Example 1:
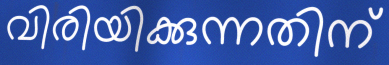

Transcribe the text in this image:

വിരിയിക്കുന്നതിന്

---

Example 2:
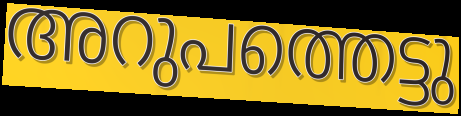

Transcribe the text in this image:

അറുപത്തെട്ടു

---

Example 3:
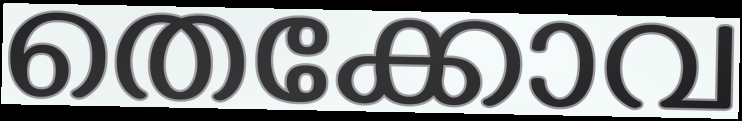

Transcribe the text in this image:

തെക്കോവ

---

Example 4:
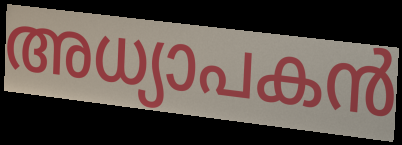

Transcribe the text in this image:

അധ്യാപകൻ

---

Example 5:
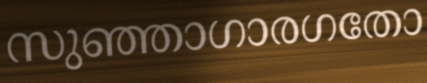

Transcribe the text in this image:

സുഞ്ഞാഗാരഗതോ